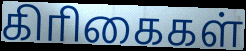
கிரிகைகள்